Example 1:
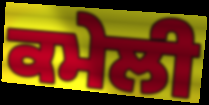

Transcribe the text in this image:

ਕਮੇਲੀ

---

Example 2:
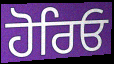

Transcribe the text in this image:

ਹੋਰਿਓ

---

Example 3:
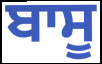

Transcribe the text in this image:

ਬਾਸੂ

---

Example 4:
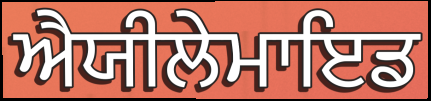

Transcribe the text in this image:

ਐਯੀਲੇਮਾਇਡ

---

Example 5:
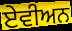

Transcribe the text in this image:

ਏਵੀਅਨ